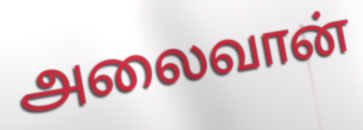
அலைவான்